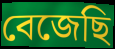
বেজেছি